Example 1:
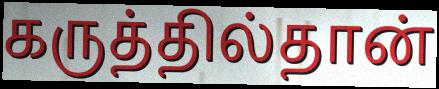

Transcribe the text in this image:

கருத்தில்தான்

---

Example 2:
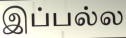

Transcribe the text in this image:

இப்பல்ல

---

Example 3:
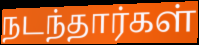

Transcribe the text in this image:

நடந்தார்கள்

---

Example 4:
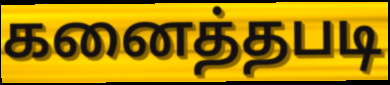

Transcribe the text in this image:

கனைத்தபடி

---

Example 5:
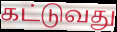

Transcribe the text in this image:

கட்டுவது